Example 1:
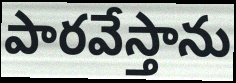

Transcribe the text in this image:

పారవేస్తాను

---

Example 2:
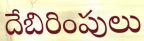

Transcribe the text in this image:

దేబిరింపులు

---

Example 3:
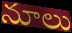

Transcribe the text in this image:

నూలు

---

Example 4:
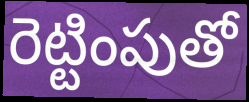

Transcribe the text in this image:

రెట్టింపుతో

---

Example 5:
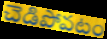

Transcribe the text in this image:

చెడిపోవటం